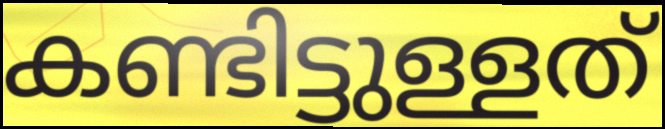
കണ്ടിട്ടുള്ളത്